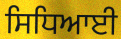
ਸਿਧਿਆਈ